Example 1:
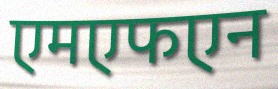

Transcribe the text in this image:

एमएफएन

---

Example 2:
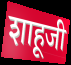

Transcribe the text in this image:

शाहूजी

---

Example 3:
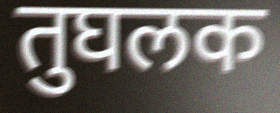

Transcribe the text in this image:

तुघलक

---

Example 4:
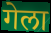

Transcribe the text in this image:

गेला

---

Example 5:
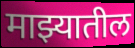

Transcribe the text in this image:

माझ्यातील